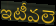
ఇటీవలె